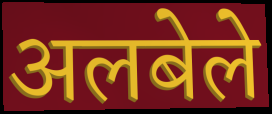
अलबेले